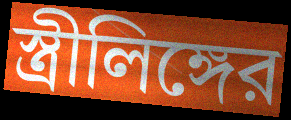
স্ত্রীলিঙ্গের